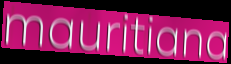
mauritiana